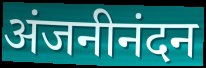
अंजनीनंदन